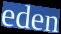
eden